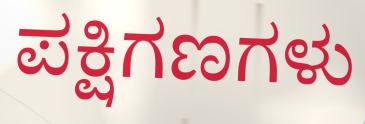
ಪಕ್ಷಿಗಣಗಳು